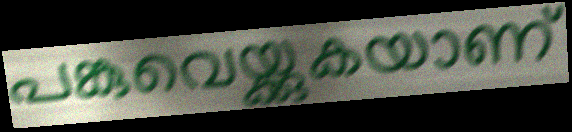
പങ്കുവെയ്ക്കുകയാണ്